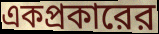
একপ্রকারের